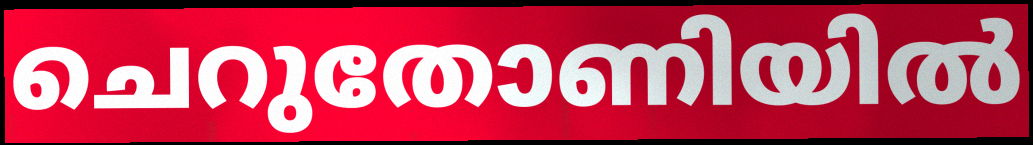
ചെറുതോണിയിൽ